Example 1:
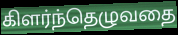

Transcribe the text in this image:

கிளர்ந்தெழுவதை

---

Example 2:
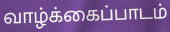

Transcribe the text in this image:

வாழ்க்கைப்பாடம்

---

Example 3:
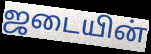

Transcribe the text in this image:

ஜடையின்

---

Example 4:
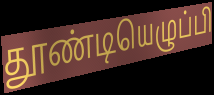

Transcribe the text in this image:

தூண்டியெழுப்பி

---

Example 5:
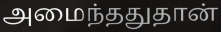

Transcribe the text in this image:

அமைந்ததுதான்